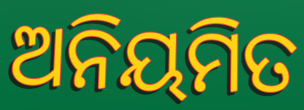
ଅନିୟମିତ